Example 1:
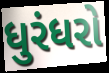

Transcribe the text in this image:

ધુરંધરો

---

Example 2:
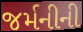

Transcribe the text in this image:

જર્મનીની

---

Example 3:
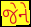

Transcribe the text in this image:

જેને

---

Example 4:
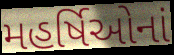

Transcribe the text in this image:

મહર્ષિઓનાં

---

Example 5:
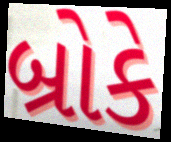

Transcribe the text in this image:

બ્રોકે